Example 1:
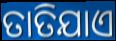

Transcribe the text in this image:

ତାତିଯାଏ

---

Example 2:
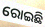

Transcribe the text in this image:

ରୋଇଛି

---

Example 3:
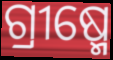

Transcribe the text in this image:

ଗ୍ରୀଷ୍ମେ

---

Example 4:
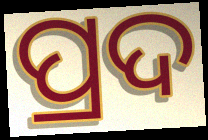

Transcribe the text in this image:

ପ୍ରଦ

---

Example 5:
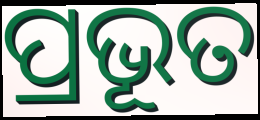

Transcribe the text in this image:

ପ୍ରଭୂତ